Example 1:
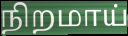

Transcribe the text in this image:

நிறமாய்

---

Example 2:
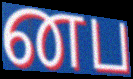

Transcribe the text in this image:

னப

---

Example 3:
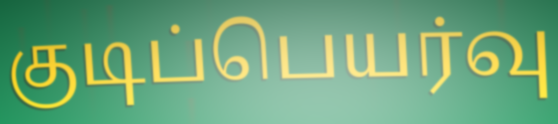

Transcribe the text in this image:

குடிப்பெயர்வு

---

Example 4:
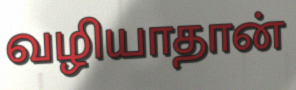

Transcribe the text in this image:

வழியாதான்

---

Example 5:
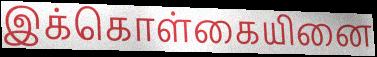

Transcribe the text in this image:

இக்கொள்கையினை